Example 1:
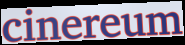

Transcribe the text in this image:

cinereum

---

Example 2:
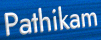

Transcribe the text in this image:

Pathikam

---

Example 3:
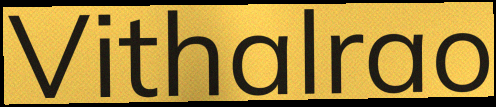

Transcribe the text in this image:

Vithalrao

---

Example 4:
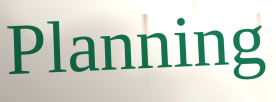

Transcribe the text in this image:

Planning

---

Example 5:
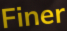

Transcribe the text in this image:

Finer